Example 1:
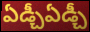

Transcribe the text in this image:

ఏడ్చీఏడ్చీ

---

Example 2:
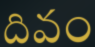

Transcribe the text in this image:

దివం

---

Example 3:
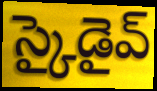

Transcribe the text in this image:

స్కైడైవ్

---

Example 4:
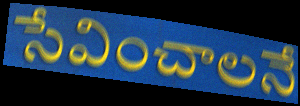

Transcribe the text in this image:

సేవించాలనే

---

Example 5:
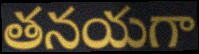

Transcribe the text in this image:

తనయగా